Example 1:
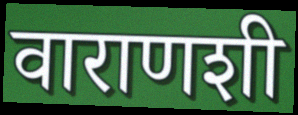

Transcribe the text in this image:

वाराणशी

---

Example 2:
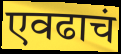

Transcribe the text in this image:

एवढाचं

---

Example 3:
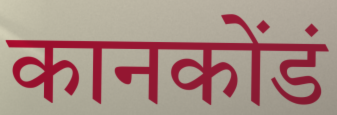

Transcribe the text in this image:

कानकोंडं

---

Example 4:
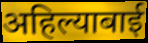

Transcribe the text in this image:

अहिल्याबाई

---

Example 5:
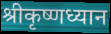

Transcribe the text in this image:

श्रीकृष्णध्यान